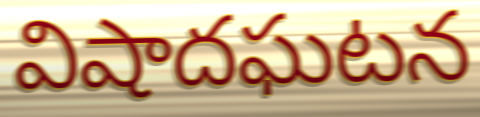
విషాదఘటన